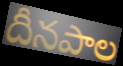
దీనపాల